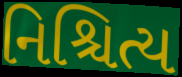
નિશ્ચિત્ય